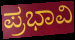
ಪ್ರಭಾವಿ